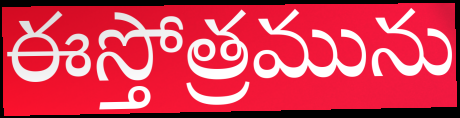
ఈస్తోత్రమును